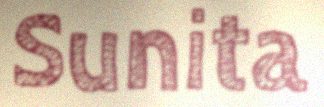
Sunita